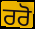
ਰਰੋ